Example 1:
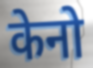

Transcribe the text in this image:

केनो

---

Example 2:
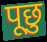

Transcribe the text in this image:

पूछु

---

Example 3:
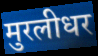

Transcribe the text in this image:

मुरलीधर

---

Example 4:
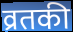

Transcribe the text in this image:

व्रतकी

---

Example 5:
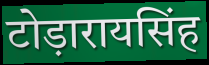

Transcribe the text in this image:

टोड़ारायसिंह